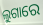
ଲୁଗାରେ